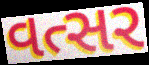
વત્સર